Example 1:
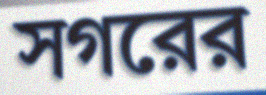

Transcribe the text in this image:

সগরের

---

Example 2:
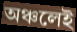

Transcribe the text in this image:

অঞ্চলেই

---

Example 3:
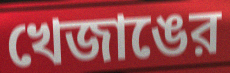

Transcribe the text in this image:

খেজাঙের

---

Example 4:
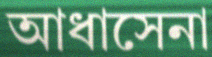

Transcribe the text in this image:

আধাসেনা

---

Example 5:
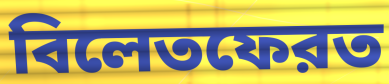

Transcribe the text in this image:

বিলেতফেরত